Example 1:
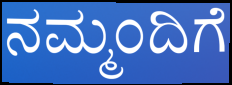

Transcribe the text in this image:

ನಮ್ಮಂದಿಗೆ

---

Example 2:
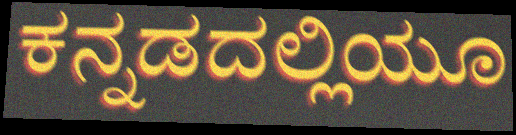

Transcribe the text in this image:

ಕನ್ನಡದಲ್ಲಿಯೂ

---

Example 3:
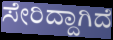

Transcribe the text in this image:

ಸೇರಿದ್ದಾಗಿದೆ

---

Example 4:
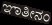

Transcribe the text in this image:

ಞಾತೀನಂ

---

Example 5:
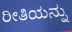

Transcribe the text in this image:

ರೀತಿಯನ್ನು